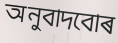
অনুবাদবোৰ